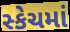
સ્કેચમાં